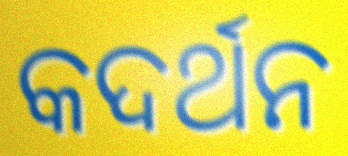
କଦର୍ଥନ